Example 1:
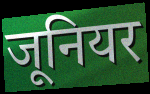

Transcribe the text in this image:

जूनियर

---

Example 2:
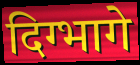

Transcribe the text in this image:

दिग्भागे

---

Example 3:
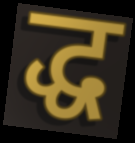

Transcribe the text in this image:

द्ध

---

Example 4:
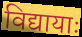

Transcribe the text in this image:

विद्यायाः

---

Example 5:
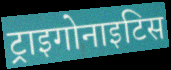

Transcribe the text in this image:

ट्राइगोनाइटिस